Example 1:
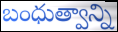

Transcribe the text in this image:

బంధుత్వాన్ని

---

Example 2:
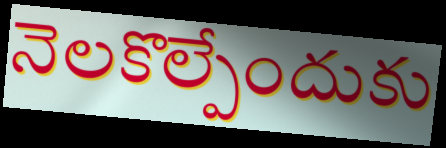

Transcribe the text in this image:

నెలకొల్పేందుకు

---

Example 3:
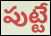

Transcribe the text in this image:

పుట్టే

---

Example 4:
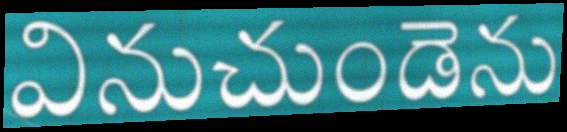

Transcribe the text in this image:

వినుచుండెను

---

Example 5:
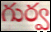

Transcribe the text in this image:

గుర్వ